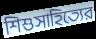
শিশুসাহিত্যের